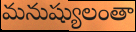
మనుష్యులంతా